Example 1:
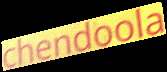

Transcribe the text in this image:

chendoola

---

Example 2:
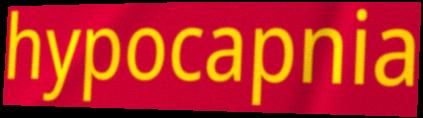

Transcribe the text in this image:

hypocapnia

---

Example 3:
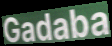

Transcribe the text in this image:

Gadaba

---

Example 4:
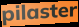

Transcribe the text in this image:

pilaster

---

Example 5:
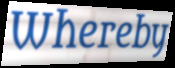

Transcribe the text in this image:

Whereby